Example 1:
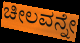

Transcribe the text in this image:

ಚೀಲವನ್ನೇ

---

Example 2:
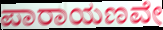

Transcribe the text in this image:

ಪಾರಾಯಣವೇ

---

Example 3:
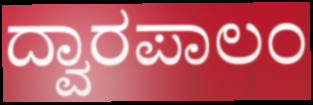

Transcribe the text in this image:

ದ್ವಾರಪಾಲಂ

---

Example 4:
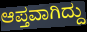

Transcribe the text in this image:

ಆಪ್ತವಾಗಿದ್ದು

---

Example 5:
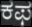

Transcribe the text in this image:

ಕಫ